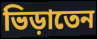
ভিড়াতেন